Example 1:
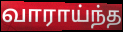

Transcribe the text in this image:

வாராய்ந்த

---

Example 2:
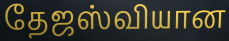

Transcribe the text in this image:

தேஜஸ்வியான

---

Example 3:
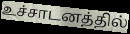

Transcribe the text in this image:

உச்சாடனத்தில்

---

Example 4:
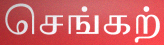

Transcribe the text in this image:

செங்கற்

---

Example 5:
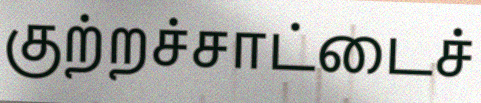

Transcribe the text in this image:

குற்றச்சாட்டைச்